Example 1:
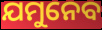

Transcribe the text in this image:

ଯମୁନେବ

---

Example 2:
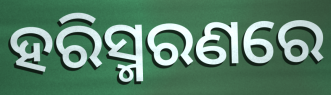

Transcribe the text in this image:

ହରିସ୍ମରଣରେ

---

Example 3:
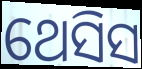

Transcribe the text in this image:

ଥେସିସ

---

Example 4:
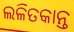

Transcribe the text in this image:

ଲଳିତକାନ୍ତ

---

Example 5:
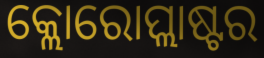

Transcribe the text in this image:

କ୍ଲୋରୋପ୍ଲାଷ୍ଟର